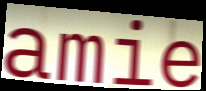
amie